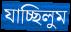
যাচ্ছিলুম